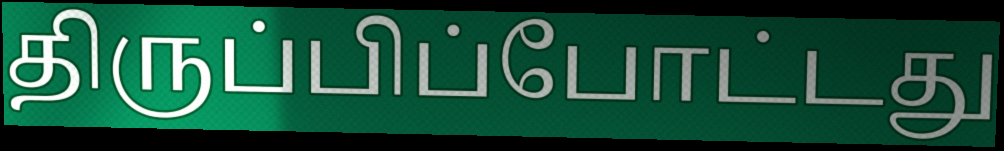
திருப்பிப்போட்டது